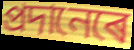
প্ৰদানেৰে